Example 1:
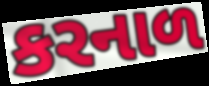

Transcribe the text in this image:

કરનાળ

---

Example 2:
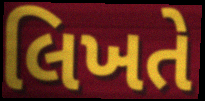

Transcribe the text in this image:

લિખતે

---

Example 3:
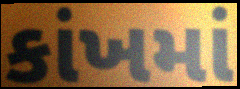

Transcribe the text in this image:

કાંખમાં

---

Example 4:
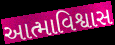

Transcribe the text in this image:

આત્માવિશ્વાસ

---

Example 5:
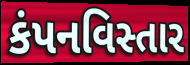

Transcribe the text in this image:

કંપનવિસ્તાર